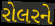
રોલરને